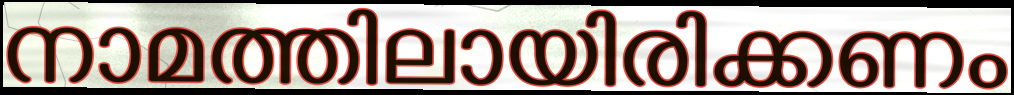
നാമത്തിലായിരിക്കണം